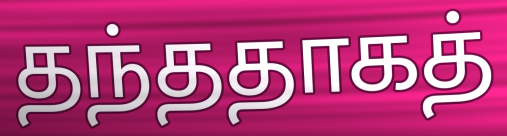
தந்ததாகத்